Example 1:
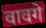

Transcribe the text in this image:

वावगे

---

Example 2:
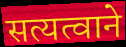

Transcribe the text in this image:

सत्यत्वाने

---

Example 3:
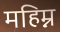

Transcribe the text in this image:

महिम्न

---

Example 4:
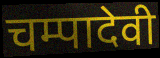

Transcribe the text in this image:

चम्पादेवी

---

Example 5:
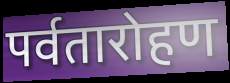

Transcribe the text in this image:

पर्वतारोहण